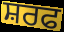
ਸ਼ਰਫ